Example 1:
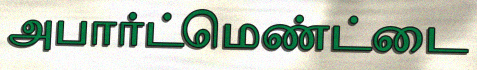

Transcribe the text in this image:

அபார்ட்மெண்ட்டை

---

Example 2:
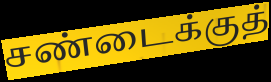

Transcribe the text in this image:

சண்டைக்குத்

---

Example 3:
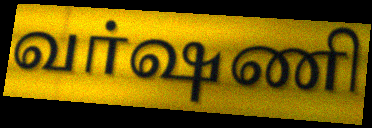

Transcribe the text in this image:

வர்ஷணி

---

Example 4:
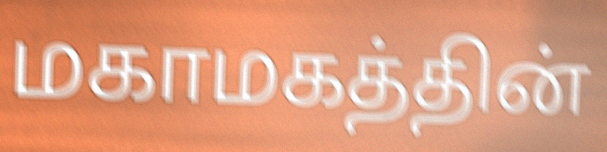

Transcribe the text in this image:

மகாமகத்தின்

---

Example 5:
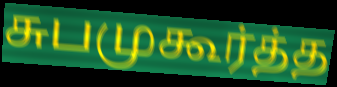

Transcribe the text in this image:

சுபமுகூர்த்த